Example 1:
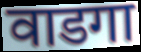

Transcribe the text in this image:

वाडगा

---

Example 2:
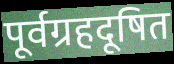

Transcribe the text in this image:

पूर्वग्रहदूषित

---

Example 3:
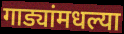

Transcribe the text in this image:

गाड्यांमधल्या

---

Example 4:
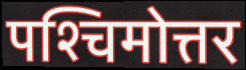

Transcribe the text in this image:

पश्चिमोत्तर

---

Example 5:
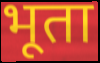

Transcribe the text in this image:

भूता